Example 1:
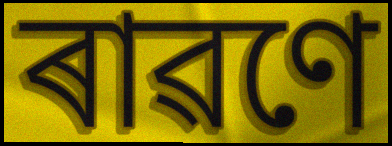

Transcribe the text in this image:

ৰাৱণে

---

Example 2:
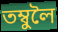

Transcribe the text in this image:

তম্বুলৈ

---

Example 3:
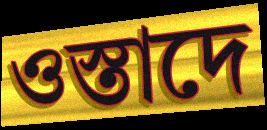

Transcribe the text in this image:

ওস্তাদে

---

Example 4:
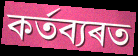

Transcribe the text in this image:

কৰ্তব্যৰত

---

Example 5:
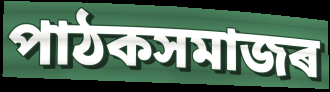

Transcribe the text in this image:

পাঠকসমাজৰ